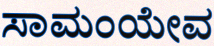
ಸಾಮಂಯೇವ